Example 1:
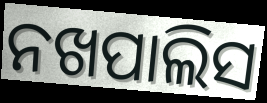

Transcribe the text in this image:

ନଖପାଲିସ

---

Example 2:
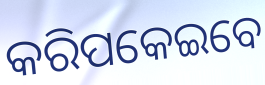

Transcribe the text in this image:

କରିପକେଇବେ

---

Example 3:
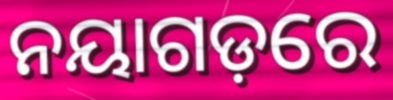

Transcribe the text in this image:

ନୟାଗଡ଼ରେ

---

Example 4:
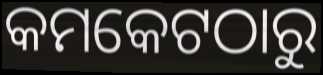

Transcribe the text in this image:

କମକେଟଠାରୁ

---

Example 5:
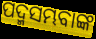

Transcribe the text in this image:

ପଦ୍ମସମ୍ଭବାଙ୍କ